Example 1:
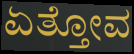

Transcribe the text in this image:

ಏತ್ತೋವ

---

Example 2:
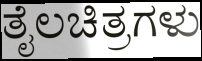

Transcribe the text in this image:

ತೈಲಚಿತ್ರಗಳು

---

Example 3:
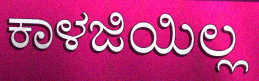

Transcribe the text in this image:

ಕಾಳಜಿಯಿಲ್ಲ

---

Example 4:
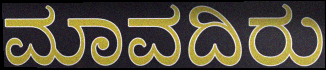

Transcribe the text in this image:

ಮಾವದಿರು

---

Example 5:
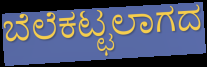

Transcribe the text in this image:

ಬೆಲೆಕಟ್ಟಲಾಗದ